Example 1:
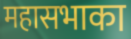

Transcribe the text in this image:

महासभाका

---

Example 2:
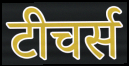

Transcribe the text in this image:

टीचर्स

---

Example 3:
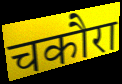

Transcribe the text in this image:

चकौरा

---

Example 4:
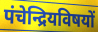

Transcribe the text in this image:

पंचेन्द्रियविषयों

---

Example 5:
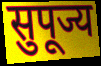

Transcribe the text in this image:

सुपूज्य